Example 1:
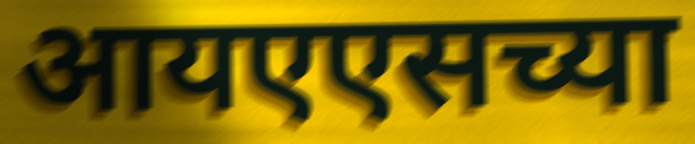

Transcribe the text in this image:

आयएएसच्या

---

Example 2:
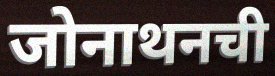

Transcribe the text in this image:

जोनाथनची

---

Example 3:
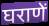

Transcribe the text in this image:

घराणें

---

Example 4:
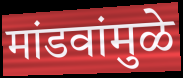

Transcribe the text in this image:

मांडवांमुळे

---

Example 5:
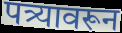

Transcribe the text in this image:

पत्र्यावरून